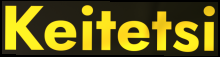
Keitetsi